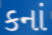
કનાં